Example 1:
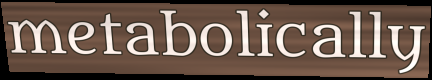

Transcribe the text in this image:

metabolically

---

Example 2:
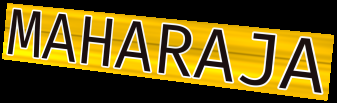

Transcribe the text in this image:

MAHARAJA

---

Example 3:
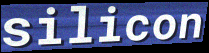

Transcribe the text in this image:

silicon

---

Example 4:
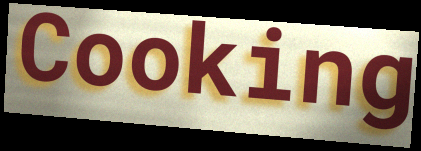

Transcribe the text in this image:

Cooking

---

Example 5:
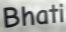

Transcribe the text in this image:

Bhati